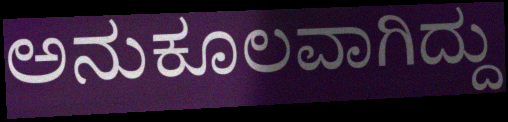
ಅನುಕೂಲವಾಗಿದ್ದು